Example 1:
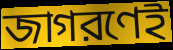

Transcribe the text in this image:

জাগরণেই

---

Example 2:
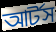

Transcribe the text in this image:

আর্টস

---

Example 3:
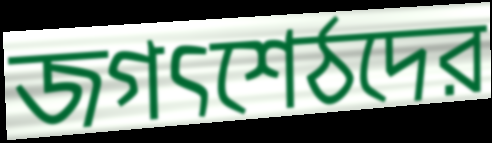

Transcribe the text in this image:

জগৎশেঠদের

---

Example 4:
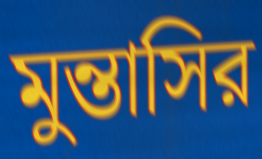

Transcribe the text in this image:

মুন্তাসির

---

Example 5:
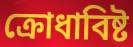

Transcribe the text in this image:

ক্রোধাবিষ্ট